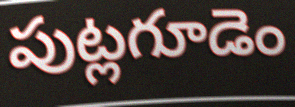
పుట్లగూడెం